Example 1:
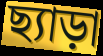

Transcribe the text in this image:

ছ্যাড়া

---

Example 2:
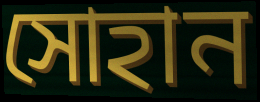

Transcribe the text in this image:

সোহান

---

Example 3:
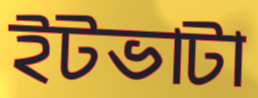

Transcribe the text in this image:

ইটভাটা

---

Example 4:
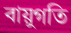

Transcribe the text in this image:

বায়ুগতি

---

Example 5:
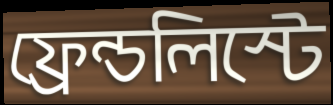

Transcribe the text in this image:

ফ্রেন্ডলিস্টে